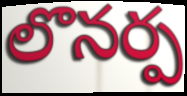
లొనర్ప